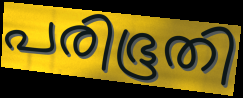
പരിഭൂതി